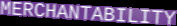
MERCHANTABILITY